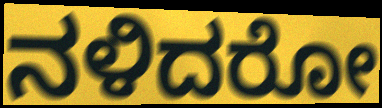
ನಳಿದರೋ